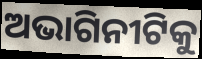
ଅଭାଗିନୀଟିକୁ